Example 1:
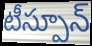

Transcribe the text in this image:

టీస్పూన్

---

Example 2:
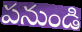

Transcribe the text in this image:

పనుండి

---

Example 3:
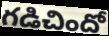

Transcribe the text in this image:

గడిచిందో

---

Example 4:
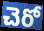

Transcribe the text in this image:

చెరో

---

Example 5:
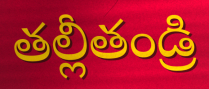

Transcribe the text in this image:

తల్లీతండ్రి